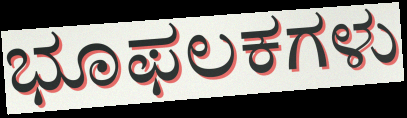
ಭೂಫಲಕಗಳು